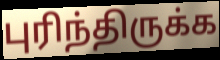
புரிந்திருக்க